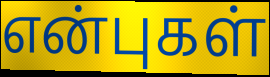
என்புகள்